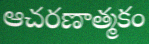
ఆచరణాత్మకం